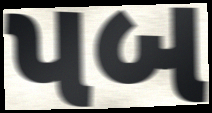
પબ